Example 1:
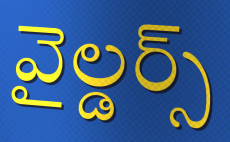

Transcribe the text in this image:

వైల్డర్స్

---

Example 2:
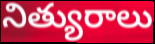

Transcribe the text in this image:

నిత్యురాలు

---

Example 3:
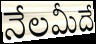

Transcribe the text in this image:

నేలమీదే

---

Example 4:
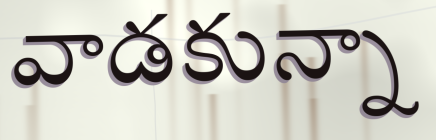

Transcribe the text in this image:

వాడకున్నా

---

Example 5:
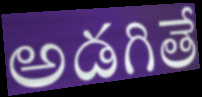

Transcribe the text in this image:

అడగితే